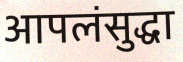
आपलंसुद्धा